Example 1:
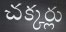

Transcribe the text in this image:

చక్కర్లు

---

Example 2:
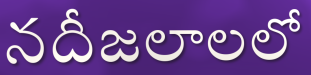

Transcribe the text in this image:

నదీజలాలలో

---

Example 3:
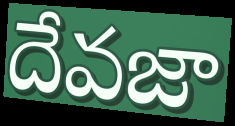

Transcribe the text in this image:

దేవజా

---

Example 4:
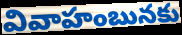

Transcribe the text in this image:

వివాహంబునకు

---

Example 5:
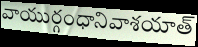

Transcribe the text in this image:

వాయుర్గంధానివాశయాత్